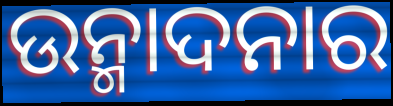
ଉନ୍ମାଦନାର